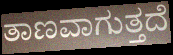
ತಾಣವಾಗುತ್ತದೆ